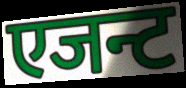
एजन्ट